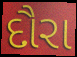
દૌરા